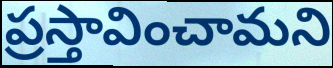
ప్రస్తావించామని